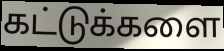
கட்டுக்களை